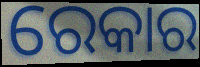
ରେକାର